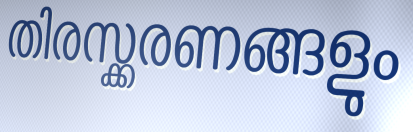
തിരസ്ക്കരണങ്ങളും